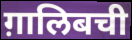
ग़ालिबची